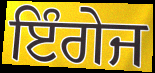
ਇੰਗੇਜ